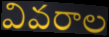
వివరాల